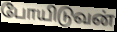
போயிடுவன்